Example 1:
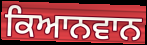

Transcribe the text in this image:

ਕਿਆਨਵਾਨ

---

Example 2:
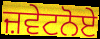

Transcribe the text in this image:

ਜ਼ਵੇਟਨੋਏ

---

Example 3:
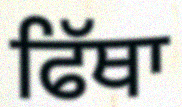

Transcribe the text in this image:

ਫਿੱਥਾ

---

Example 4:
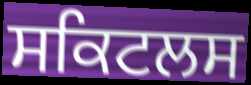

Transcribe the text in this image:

ਸਕਿਟਲਸ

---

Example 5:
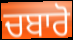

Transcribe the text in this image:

ਚਬਾਰੋ